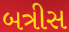
બત્રીસ